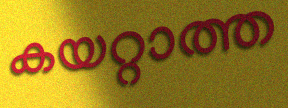
കയറ്റാത്ത